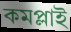
কমপ্লাই